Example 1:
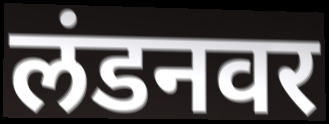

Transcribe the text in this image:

लंडनवर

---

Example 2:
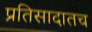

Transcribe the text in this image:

प्रतिसादातच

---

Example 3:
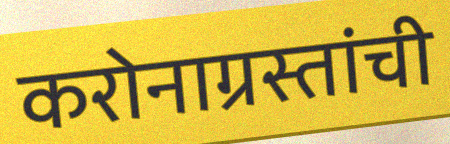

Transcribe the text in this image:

करोनाग्रस्तांची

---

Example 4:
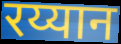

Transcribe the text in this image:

रय्यान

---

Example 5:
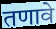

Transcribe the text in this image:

तणावे